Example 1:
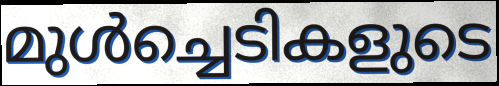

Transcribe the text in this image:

മുൾച്ചെടികളുടെ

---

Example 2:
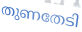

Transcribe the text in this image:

തുണതേടി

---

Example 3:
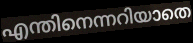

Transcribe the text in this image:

എന്തിനെന്നറിയാതെ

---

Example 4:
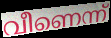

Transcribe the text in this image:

വീണെന്ന്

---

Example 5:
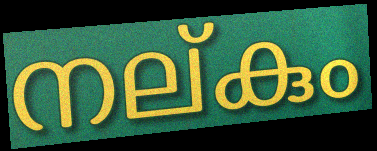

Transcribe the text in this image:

നല്‌കും